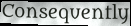
Consequently